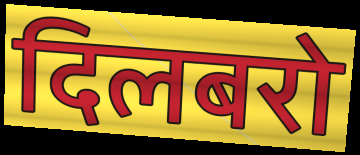
दिलबरो